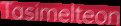
Tasimelteon